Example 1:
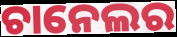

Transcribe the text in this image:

ଚାନେଲର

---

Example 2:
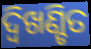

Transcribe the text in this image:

ଦ୍ଵିଖଣ୍ଡିତ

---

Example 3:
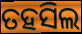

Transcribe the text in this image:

ତହସିଲ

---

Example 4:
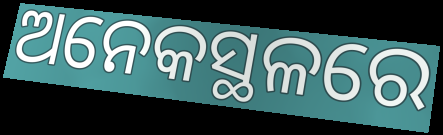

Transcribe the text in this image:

ଅନେକସ୍ଥଳରେ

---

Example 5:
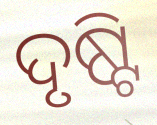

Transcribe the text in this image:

ଦୃଷ୍ଟି